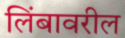
लिंबावरील